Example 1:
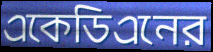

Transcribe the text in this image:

একেডিএনের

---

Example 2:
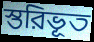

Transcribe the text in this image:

স্তরিভূত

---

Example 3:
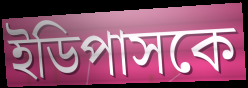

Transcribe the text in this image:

ইডিপাসকে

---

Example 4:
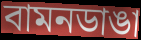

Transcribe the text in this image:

বামনডাঙা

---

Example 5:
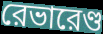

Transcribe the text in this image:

রেভারেণ্ড